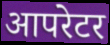
आपरेटर